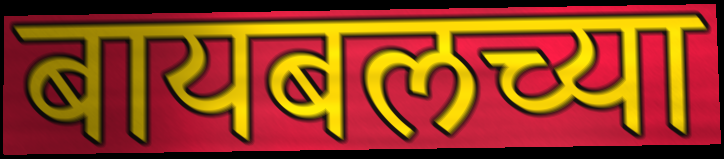
बायबलच्या